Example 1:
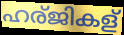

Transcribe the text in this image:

ഹര്ജികള്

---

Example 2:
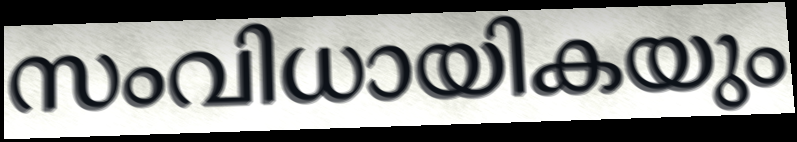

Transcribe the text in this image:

സംവിധായികയും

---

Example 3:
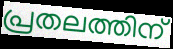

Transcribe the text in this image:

പ്രതലത്തിന്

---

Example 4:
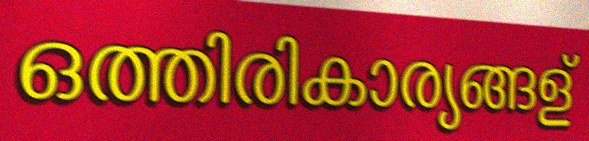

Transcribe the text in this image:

ഒത്തിരികാര്യങ്ങള്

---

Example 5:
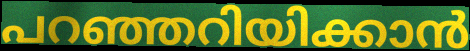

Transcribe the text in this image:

പറഞ്ഞറിയിക്കാൻ